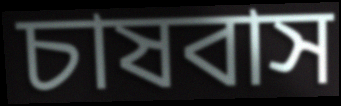
চাষবাস